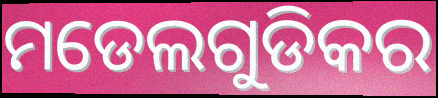
ମଡେଲଗୁଡିକର